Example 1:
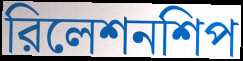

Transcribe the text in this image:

রিলেশনশিপ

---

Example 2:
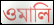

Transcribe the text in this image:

ওমালি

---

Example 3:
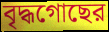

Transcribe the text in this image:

বৃদ্ধগোছের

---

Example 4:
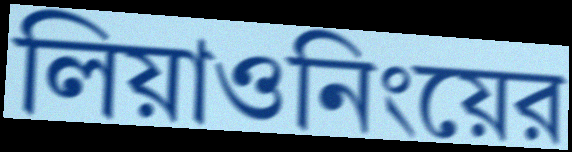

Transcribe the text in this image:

লিয়াওনিংয়ের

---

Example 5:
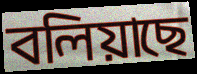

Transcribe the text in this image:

বলিয়াছে